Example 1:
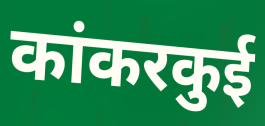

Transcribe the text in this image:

कांकरकुई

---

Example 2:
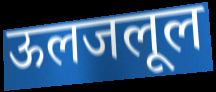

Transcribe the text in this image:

ऊलजलूल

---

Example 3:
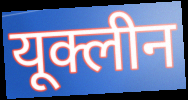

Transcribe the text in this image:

यूक्लीन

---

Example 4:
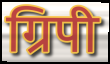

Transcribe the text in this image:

ग्रिपी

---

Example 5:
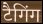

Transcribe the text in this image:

टैगिंग